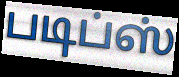
படிப்ஸ்